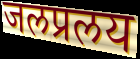
जलप्रलय